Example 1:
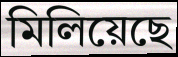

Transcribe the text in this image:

মিলিয়েছে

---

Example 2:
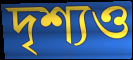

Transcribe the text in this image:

দৃশ্যও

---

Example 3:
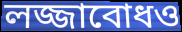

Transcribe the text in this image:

লজ্জাবোধও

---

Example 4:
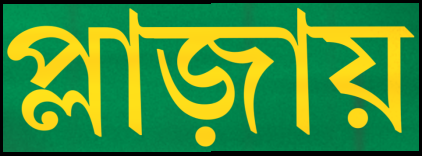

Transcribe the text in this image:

প্লাজ়ায়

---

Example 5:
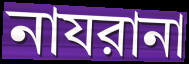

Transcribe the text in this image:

নাযরানা